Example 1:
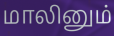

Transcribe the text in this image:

மாலினும்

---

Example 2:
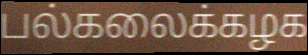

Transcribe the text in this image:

பல்கலைக்கழக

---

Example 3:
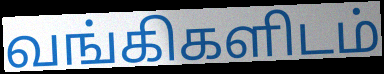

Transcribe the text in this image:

வங்கிகளிடம்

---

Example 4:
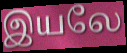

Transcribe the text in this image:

இயலே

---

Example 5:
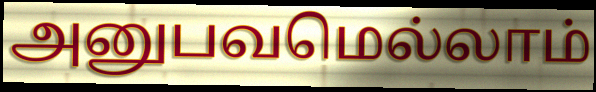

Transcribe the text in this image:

அனுபவமெல்லாம்